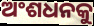
ଅଂଶଧନକୁ